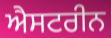
ਐਸਟਰੀਨ